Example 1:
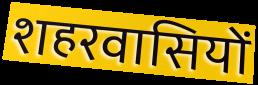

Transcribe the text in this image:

शहरवासियों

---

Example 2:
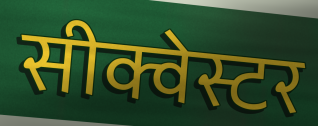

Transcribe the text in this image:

सीक्वेस्टर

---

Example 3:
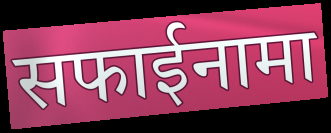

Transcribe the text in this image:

सफाईनामा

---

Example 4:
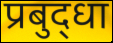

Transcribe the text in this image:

प्रबुद्धा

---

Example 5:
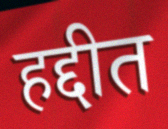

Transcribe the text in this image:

हद्दीत